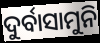
ଦୁର୍ବାସାମୁନି